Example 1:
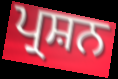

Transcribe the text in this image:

ਪ੍ਰਸ਼ਨ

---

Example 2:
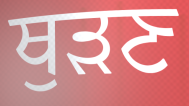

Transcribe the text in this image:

ਥੁੜਣ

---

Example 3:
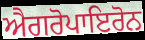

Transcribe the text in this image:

ਐਗਰੋਪਾਇਰੋਨ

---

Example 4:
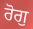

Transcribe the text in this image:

ਰੋਗੁ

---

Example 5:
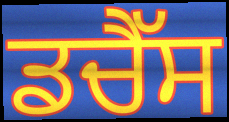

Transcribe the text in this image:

ਡਚੈੱਸ